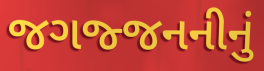
જગજ્જનનીનું